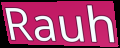
Rauh